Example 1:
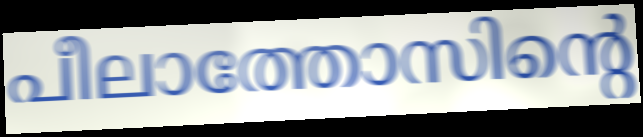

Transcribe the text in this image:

പീലാത്തോസിന്റെ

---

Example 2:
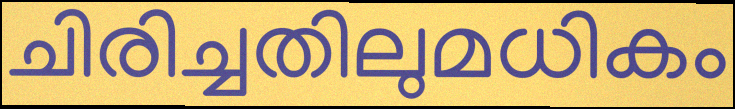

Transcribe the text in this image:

ചിരിച്ചതിലുമധികം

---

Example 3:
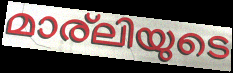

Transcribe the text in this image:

മാര്ലിയുടെ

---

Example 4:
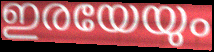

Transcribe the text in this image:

ഇരയേയും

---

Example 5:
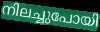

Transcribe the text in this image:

നിലച്ചുപോയി